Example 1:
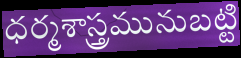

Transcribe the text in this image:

ధర్మశాస్త్రమునుబట్టి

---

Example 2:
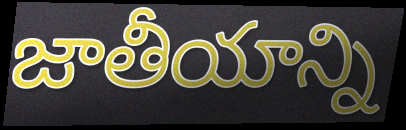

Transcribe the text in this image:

జాతీయాన్ని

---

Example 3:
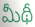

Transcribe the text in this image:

మీథీ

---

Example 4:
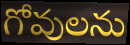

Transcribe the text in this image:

గోవులను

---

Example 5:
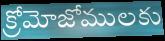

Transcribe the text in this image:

క్రోమోజోములకు